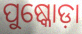
ପୁଷ୍କୋଡ଼ା